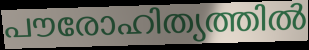
പൗരോഹിത്യത്തിൽ